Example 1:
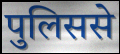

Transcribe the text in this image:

पुलिससे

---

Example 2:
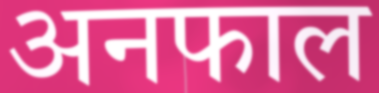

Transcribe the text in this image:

अनफाल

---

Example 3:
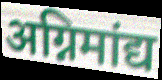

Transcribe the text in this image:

अग्निमांद्य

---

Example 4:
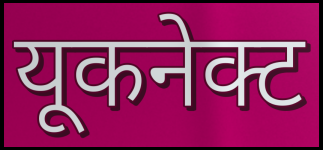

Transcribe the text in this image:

यूकनेक्ट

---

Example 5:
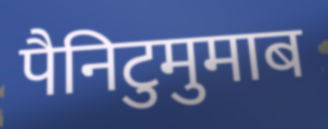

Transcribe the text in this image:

पैनिटुमुमाब